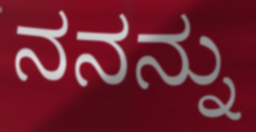
ನನನ್ನು